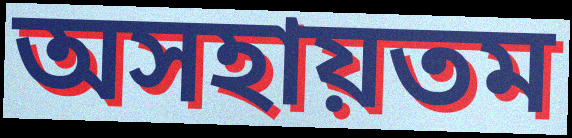
অসহায়তম